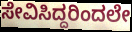
ಸೇವಿಸಿದ್ದರಿಂದಲೇ